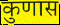
कुणास